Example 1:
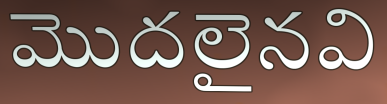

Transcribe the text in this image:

మొదలైనవి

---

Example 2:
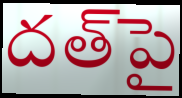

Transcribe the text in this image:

దత్‌పై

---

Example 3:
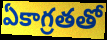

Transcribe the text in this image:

ఏకాగ్రతతో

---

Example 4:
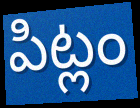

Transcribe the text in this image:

పిట్లం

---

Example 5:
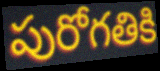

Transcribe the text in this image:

పురోగతికి